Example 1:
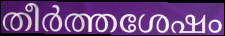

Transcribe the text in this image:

തീർത്തശേഷം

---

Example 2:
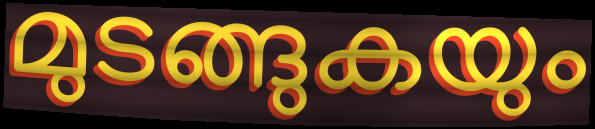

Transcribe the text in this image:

മുടങ്ങുകയും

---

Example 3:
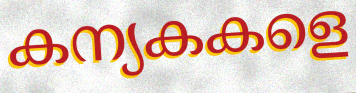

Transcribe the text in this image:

കന്യകകളെ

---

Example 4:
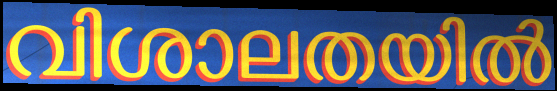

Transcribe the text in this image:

വിശാലതയിൽ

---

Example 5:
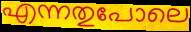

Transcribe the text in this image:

എന്നതുപോലെ